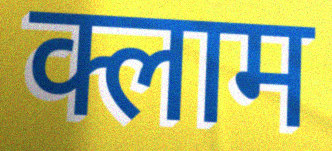
क्लाम